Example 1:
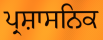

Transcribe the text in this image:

ਪ੍ਰਸ਼ਾਸਨਿਕ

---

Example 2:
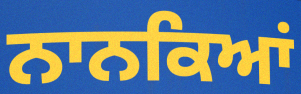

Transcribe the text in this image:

ਨਾਨਕਿਆਂ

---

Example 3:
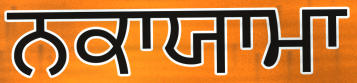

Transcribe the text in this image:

ਨਕਾਯਾਮਾ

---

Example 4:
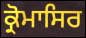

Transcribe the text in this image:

ਕ੍ਰੋਮਾਸਿਰ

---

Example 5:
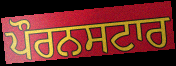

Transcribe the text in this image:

ਪੌਰਨਸਟਾਰ